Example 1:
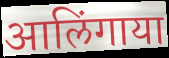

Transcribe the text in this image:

आलिंगाया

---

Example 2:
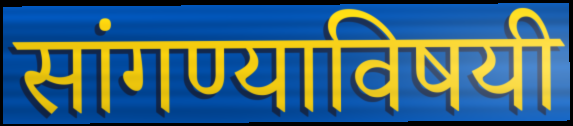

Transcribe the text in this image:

सांगण्याविषयी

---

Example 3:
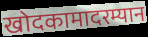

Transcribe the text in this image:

खोदकामादरम्यान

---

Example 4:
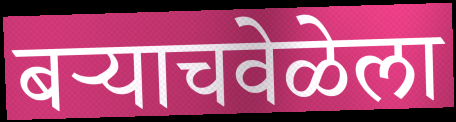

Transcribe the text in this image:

बर्‍याचवेळेला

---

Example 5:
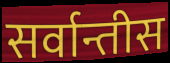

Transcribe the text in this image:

सर्वान्तीस